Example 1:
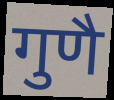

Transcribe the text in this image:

गुणै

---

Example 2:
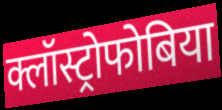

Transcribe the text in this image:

क्लॉस्ट्रोफोबिया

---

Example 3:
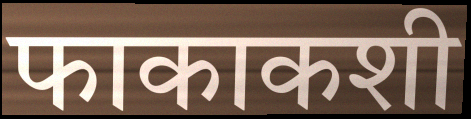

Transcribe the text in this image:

फाकाकशी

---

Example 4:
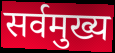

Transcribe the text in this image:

सर्वमुख्य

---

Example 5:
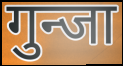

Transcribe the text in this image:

गुन्जा